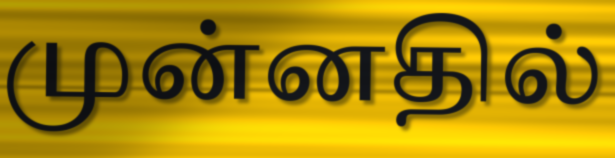
முன்னதில்